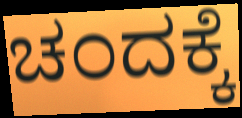
ಚಂದಕ್ಕೆ